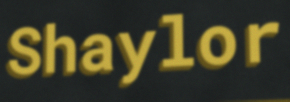
Shaylor